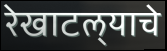
रेखाटल्याचे